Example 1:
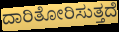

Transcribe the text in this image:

ದಾರಿತೋರಿಸುತ್ತದೆ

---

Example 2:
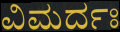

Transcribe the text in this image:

ವಿಮರ್ದಃ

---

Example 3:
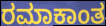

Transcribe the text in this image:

ರಮಾಕಾಂತ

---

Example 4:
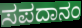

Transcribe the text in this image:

ಸಪದಾನಂ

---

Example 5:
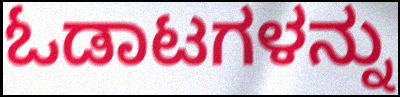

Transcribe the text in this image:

ಓಡಾಟಗಳನ್ನು